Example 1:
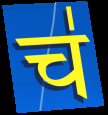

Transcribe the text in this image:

च॑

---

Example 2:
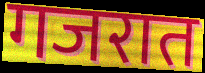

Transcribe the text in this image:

गजरात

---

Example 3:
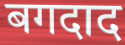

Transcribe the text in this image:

बगदाद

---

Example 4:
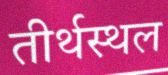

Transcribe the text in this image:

तीर्थस्थल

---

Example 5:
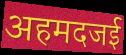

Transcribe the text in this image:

अहमदजई